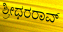
ಶ್ರೀಧರರಾವ್